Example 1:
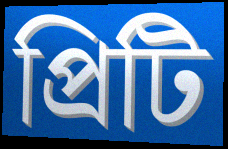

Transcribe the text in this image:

প্রিটি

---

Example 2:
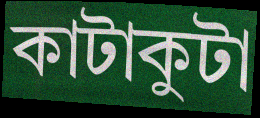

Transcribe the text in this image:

কাটাকুটা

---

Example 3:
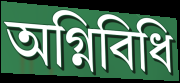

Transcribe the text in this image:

অগ্নিবিধি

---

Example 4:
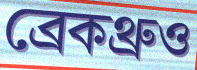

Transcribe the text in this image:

ব্রেকথ্রুও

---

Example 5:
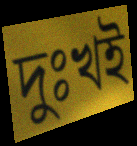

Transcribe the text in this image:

দুঃখই